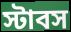
স্টাবস